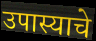
उपास्याचे